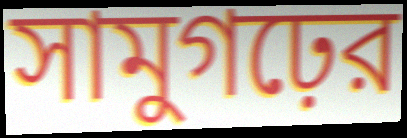
সামুগঢ়ের